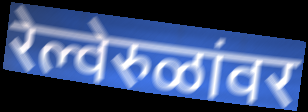
रेल्वेरुळांवर